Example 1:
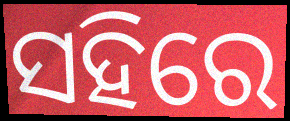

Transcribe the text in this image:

ସହିରେ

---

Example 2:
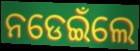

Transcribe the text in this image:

ନଡେଇଁଲେ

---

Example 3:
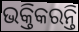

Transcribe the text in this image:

ଭକ୍ତିକରନ୍ତି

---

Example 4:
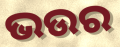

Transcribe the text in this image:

ଭଉର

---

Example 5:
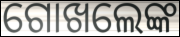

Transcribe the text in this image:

ଗୋଖଲେଙ୍କ